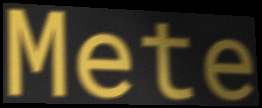
Mete